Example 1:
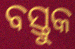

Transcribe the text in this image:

ବସ୍ତୁକ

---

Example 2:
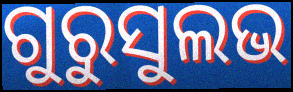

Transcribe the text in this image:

ଗୁରୁସୁଲଭ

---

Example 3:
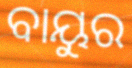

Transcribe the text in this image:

ବାୟୁର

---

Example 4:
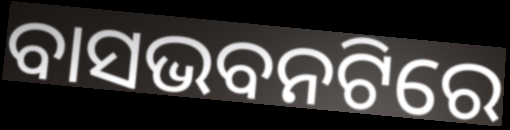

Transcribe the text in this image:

ବାସଭବନଟିରେ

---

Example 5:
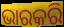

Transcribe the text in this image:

ଭାରକରି